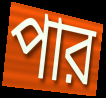
পার